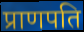
प्राणपति